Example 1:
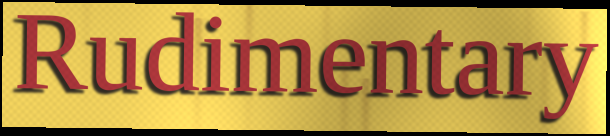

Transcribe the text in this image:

Rudimentary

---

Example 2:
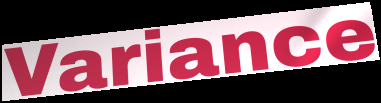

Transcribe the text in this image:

Variance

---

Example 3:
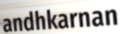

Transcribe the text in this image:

andhkarnan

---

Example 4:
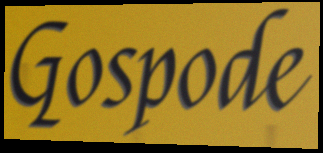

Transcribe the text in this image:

Gospode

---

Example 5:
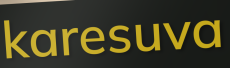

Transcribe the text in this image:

karesuva